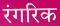
रंगरिक